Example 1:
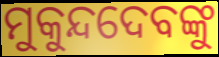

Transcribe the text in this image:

ମୁକୁନ୍ଦଦେବଙ୍କୁ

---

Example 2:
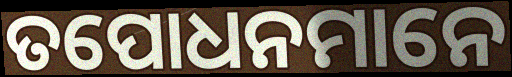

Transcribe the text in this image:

ତପୋଧନମାନେ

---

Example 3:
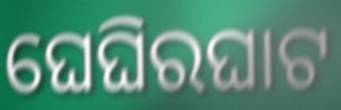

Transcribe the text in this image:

ଘେଘିରଘାଟ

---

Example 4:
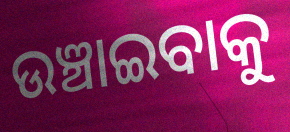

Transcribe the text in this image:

ଉଞ୍ଚାଇବାକୁ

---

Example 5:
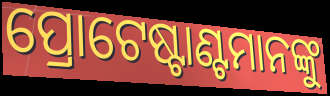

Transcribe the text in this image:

ପ୍ରୋଟେଷ୍ଟାଣ୍ଟମାନଙ୍କୁ